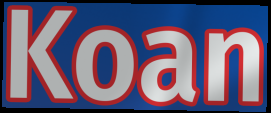
Koan